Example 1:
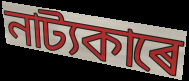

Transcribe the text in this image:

নাট্যকাৰে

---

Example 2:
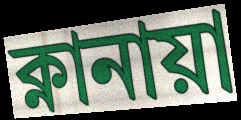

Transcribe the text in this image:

ক্নানায়া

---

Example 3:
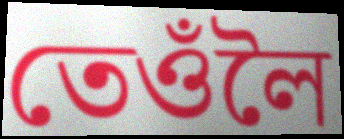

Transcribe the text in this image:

তেওঁলৈ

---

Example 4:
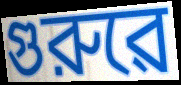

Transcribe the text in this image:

গুৰুৱে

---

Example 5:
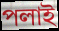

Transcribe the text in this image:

পলাই